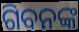
ଗିବନଙ୍କ